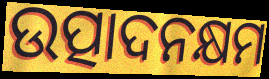
ଉତ୍ପାଦନକ୍ଷମ